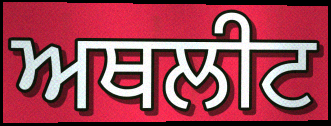
ਅਥਲੀਟ